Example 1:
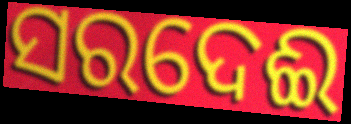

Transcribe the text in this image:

ସରଦେଈ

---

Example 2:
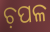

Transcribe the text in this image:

ଚ଼ପଳ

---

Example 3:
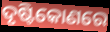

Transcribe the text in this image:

ଦୃଷ୍ଟିକୋଣରେ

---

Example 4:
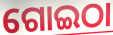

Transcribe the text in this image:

ଗୋଇଠା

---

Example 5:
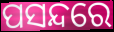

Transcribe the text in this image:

ପସନ୍ଦରେ